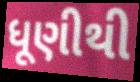
ધૂણીથી